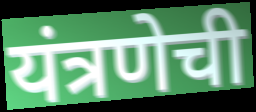
यंत्रणेची